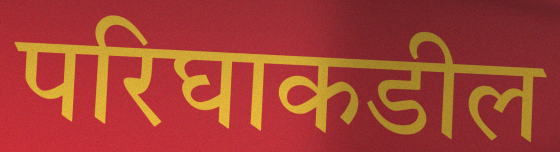
परिघाकडील